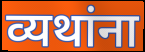
व्यथांना